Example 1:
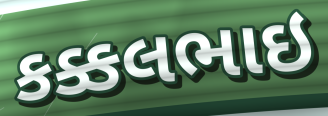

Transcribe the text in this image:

કક્કલભાઇ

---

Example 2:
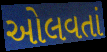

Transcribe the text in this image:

ઓલવતાં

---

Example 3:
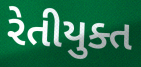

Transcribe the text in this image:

રેતીયુક્ત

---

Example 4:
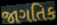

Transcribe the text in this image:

જાગતિક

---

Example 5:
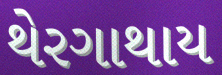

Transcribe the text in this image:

થેરગાથાય